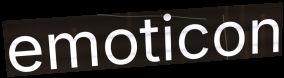
emoticon